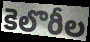
కెలొరీల